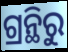
ଗ୍ରନ୍ଥିରୁ